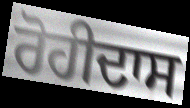
ਰੋਹੀਦਾਸ